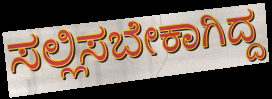
ಸಲ್ಲಿಸಬೇಕಾಗಿದ್ದ